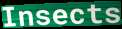
Insects